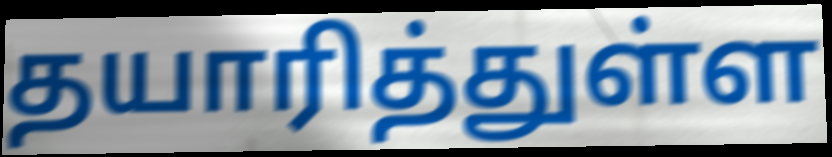
தயாரித்துள்ள